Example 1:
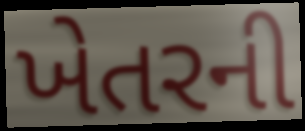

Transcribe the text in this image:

ખેતરની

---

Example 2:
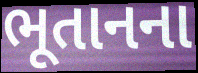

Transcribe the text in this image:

ભૂતાનના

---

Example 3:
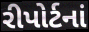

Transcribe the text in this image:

રીપોર્ટનાં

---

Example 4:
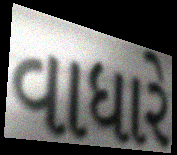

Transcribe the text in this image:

વાધારે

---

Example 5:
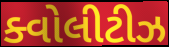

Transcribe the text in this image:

ક્વોલીટીઝ